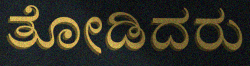
ತೋಡಿದರು